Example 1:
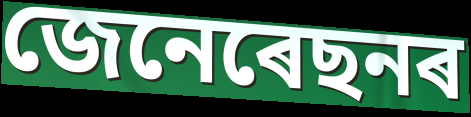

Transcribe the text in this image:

জেনেৰেছনৰ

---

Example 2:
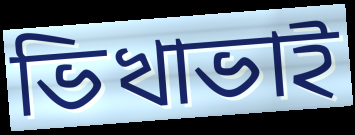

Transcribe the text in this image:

ভিখাভাই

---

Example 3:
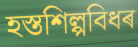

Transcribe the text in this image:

হস্তশিল্পবিধৰ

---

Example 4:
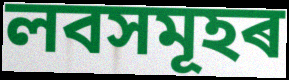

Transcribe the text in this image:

লবসমূহৰ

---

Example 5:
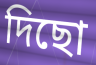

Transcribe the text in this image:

দিছো